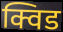
क्विड